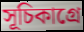
সূচিকাগ্রে